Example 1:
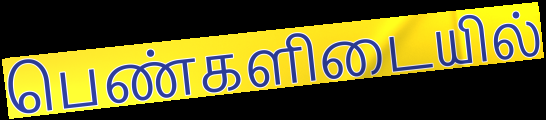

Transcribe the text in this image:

பெண்களிடையில்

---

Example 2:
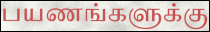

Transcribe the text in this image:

பயணங்களுக்கு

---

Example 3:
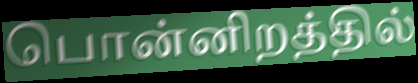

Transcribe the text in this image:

பொன்னிறத்தில்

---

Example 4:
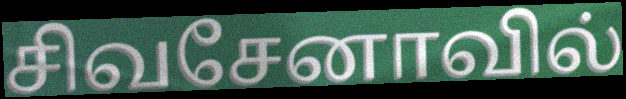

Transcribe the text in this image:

சிவசேனாவில்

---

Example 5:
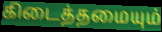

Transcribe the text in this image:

கிடைத்தமையும்